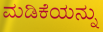
ಮಡಿಕೆಯನ್ನು